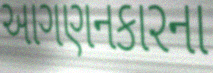
આગણનકારના